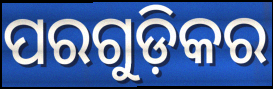
ପରଗୁଡ଼ିକର